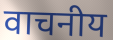
वाचनीय